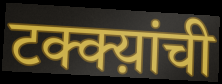
टक्क्य़ांची